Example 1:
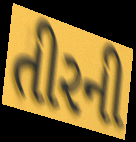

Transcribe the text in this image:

તીરની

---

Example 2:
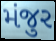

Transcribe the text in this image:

મંજુર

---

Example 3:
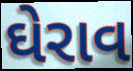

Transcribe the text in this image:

ઘેરાવ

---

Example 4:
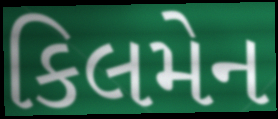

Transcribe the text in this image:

કિલમેન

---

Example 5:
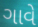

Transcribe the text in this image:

ગાવે